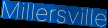
Millersville